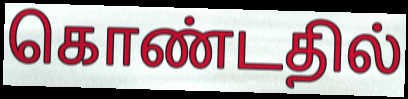
கொண்டதில்